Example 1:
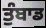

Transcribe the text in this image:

ਤੁੰਬਾਡ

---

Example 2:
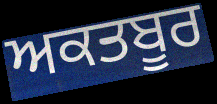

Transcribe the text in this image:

ਅਕਤਬੂਰ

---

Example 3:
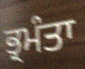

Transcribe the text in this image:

ਭ੍ਰਮੰਤਾ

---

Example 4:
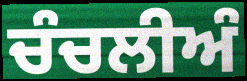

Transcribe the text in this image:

ਚੰਚਲੀਅੰ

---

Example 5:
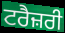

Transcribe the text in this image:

ਟਰੈਜ਼ਰੀ